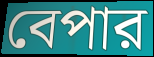
বেপার